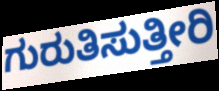
ಗುರುತಿಸುತ್ತೀರಿ